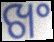
ଖଂ